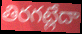
తిరగట్లేదా